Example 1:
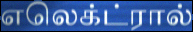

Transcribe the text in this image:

எலெக்ட்ரால்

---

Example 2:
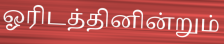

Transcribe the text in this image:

ஓரிடத்தினின்றும்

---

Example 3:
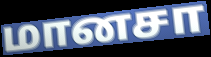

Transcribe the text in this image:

மானசா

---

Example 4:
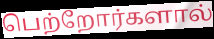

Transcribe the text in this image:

பெற்றோர்களால்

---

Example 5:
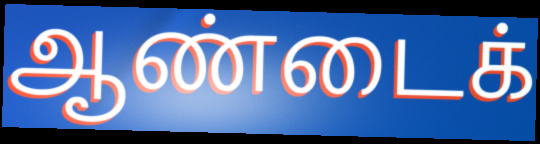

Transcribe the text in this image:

ஆண்டைக்